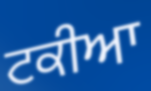
ਟਕੀਆ